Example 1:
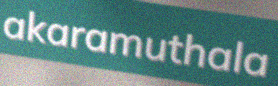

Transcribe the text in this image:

akaramuthala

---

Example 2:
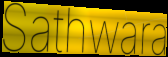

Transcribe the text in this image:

Sathwara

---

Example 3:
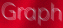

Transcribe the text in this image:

Graph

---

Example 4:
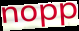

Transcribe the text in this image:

nopp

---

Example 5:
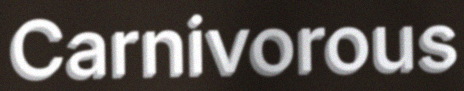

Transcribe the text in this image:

Carnivorous